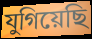
যুগিয়েছি